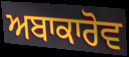
ਅਬਾਕਾਰੋਵ